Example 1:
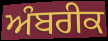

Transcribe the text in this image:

ਅੰਬਰੀਕ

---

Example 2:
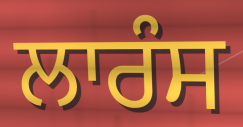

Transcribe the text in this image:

ਲਾਰੰਸ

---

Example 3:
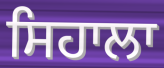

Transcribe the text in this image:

ਸਿਹਾਲਾ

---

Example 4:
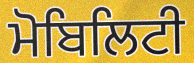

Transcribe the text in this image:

ਮੋਬਿਲਿਟੀ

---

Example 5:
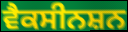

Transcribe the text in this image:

ਵੈਕਸੀਨਸ਼ਨ